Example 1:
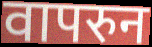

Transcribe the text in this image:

वापरुन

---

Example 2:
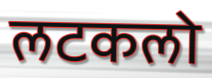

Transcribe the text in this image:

लटकलो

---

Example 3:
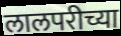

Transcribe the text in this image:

लालपरीच्या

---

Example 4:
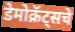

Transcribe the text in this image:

डेमोक्रॅट्सचे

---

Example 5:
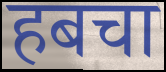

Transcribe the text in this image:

हबचा